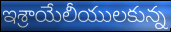
ఇశ్రాయేలీయులకున్న